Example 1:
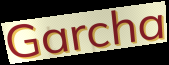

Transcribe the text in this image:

Garcha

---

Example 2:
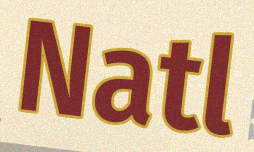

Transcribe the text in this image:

Natl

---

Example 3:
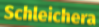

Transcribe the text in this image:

Schleichera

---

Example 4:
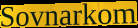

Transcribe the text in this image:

Sovnarkom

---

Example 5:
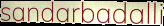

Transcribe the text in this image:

sandarbadalli